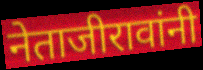
नेताजीरावांनी